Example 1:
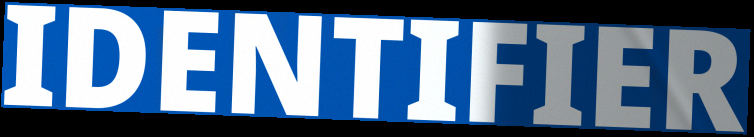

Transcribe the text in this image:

IDENTIFIER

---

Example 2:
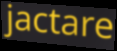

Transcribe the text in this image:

jactare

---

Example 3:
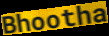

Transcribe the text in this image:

Bhootha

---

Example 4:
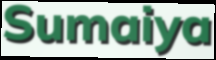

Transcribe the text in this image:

Sumaiya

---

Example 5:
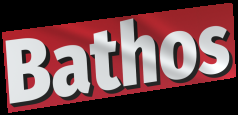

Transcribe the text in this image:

Bathos